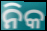
ନିକ